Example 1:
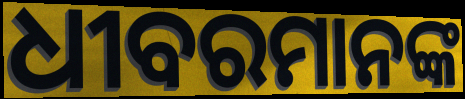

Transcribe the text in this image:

ଧୀବରମାନଙ୍କ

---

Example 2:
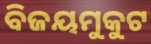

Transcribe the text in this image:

ବିଜୟମୁକୁଟ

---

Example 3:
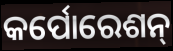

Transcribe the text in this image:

କର୍ପୋରେଶନ୍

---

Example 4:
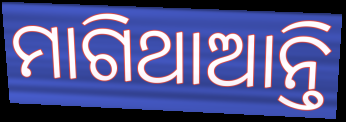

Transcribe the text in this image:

ମାଗିଥାଆନ୍ତି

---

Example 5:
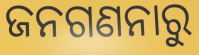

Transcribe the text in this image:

ଜନଗଣନାରୁ